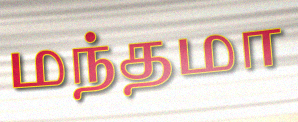
மந்தமா